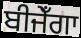
ਬੀਜੇਁਗਾ